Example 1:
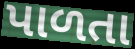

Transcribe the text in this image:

પાળતા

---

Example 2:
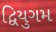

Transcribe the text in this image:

દ્વિયુગમ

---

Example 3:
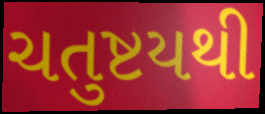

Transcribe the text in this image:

ચતુષ્ટયથી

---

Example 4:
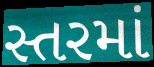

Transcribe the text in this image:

સ્તરમાં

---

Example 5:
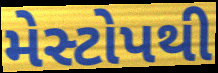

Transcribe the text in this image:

મેસ્ટોપથી